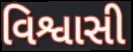
વિશ્વાસી